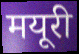
मयूरी